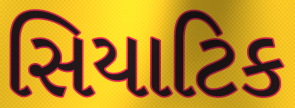
સિયાટિક